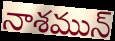
నాశమున్